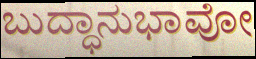
ಬುದ್ಧಾನುಭಾವೋ